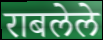
राबलेले